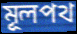
মূলপথ